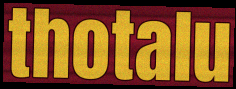
thotalu